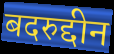
बदरुद्दीन